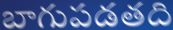
బాగుపడతది